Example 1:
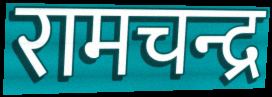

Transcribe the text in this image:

रामचन्‍द्र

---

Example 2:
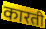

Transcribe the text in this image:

कारती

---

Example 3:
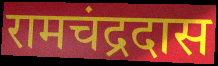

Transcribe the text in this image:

रामचंद्रदास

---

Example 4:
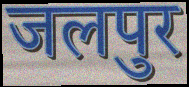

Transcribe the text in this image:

जलपुर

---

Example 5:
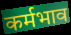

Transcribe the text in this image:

कर्मभाव